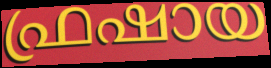
ഫ്രഷായ